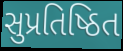
સુપ્રતિષ્ઠિત